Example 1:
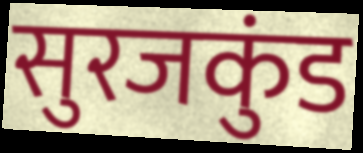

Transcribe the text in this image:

सुरजकुंड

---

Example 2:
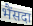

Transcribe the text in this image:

भैंसदा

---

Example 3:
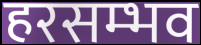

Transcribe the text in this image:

हरसम्भव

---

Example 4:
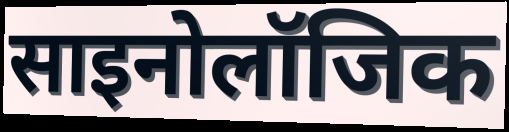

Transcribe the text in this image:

साइनोलॉजिक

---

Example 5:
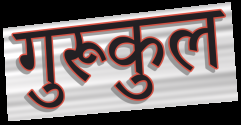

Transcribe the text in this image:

गुरूकुल